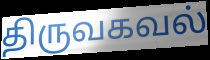
திருவகவல்